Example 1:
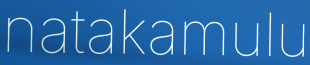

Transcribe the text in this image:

natakamulu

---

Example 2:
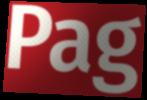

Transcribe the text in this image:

Pag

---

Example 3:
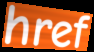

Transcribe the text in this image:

href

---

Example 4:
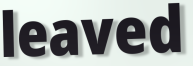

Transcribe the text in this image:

leaved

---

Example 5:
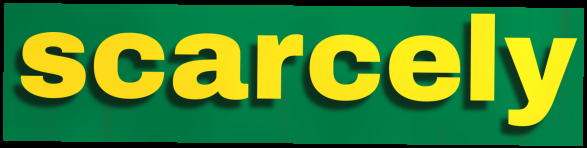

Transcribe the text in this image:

scarcely